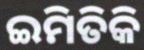
ଇମିତିକି